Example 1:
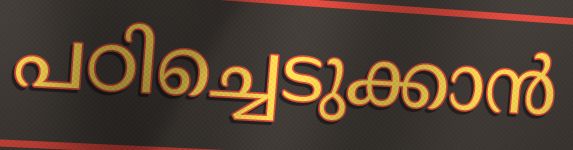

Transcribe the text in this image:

പഠിച്ചെടുക്കാൻ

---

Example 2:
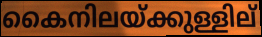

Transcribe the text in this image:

കൈനിലയ്ക്കുള്ളില്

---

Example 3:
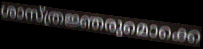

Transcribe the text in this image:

ശാസ്ത്രജ്ഞരുമൊക്കെ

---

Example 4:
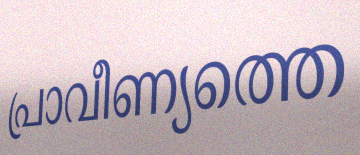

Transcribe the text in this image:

പ്രാവീണ്യത്തെ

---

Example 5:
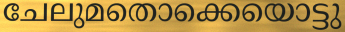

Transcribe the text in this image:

ചേലുമതൊക്കെയൊട്ടു